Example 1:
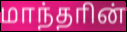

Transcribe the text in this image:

மாந்தரின்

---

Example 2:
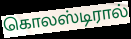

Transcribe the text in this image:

கொலஸ்டிரால்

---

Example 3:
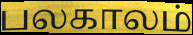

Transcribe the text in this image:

பலகாலம்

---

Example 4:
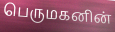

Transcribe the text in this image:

பெருமகனின்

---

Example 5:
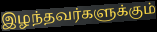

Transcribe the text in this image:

இழந்தவர்களுக்கும்